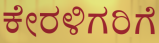
ಕೇರಳಿಗರಿಗೆ